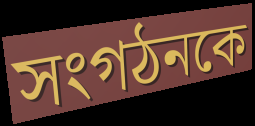
সংগঠনকে